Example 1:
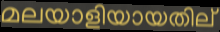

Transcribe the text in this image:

മലയാളിയായതില്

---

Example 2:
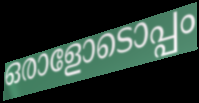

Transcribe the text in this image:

ഒരാളോടൊപ്പം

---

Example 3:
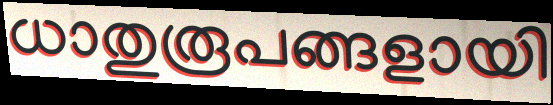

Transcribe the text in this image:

ധാതുരൂപങ്ങളായി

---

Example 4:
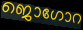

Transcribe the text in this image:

ജൊഗോറ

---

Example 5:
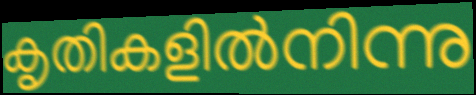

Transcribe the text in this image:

കൃതികളിൽനിന്നു